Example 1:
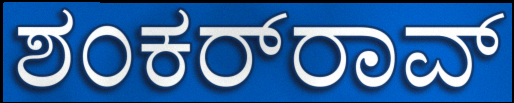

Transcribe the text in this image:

ಶಂಕರ್‌ರಾವ್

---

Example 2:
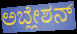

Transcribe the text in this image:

ಅಬ್ಲೇಶನ್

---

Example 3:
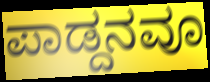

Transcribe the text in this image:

ಪಾಡ್ದನವೂ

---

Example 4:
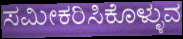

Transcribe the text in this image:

ಸಮೀಕರಿಸಿಕೊಳ್ಳುವ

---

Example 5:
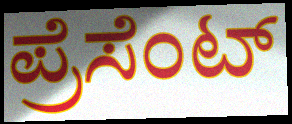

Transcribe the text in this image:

ಪ್ರೆಸೆಂಟ್